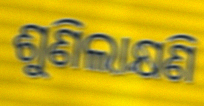
ଶୁଣିଲାକ୍ଷଣି